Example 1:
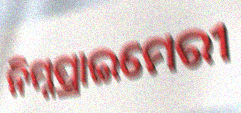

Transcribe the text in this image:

ନିମ୍ନପ୍ରାଇମେରୀ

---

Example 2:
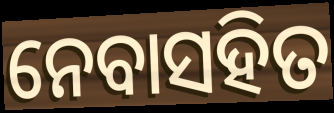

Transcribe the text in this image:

ନେବାସହିତ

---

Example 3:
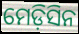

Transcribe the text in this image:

ମେଡ଼ିସିନ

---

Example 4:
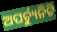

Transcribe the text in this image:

ଅପର୍ଚ୍ୟୁନିଟି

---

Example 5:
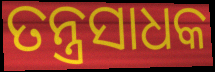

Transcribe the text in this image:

ତନ୍ତ୍ରସାଧକ